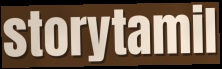
storytamil